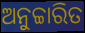
ଅନୁଚ୍ଚାରିତ